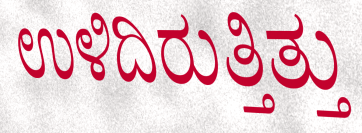
ಉಳಿದಿರುತ್ತಿತ್ತು